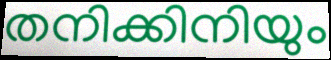
തനിക്കിനിയും